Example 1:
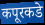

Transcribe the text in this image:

कपूरकडे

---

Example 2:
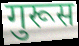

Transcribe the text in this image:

गुरूस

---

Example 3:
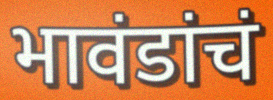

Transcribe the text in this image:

भावंडांचं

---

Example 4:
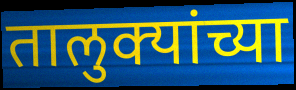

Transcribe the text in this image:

तालुक्यांच्या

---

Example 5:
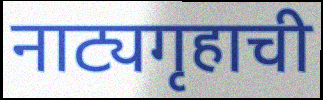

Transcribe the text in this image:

नाट्यगृहाची